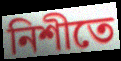
নিশীতে